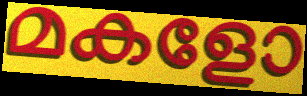
മകളോ